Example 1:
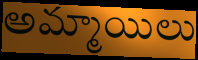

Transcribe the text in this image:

అమ్మాయిలు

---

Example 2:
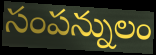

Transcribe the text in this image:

సంపన్నులం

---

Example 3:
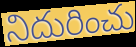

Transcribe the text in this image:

నిదురించు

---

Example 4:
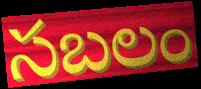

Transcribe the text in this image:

సబలం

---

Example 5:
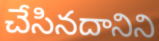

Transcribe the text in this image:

చేసినదానిని